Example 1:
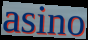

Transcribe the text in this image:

asino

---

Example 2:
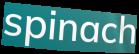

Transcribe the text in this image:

spinach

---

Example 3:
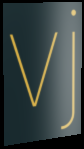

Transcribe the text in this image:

vj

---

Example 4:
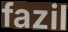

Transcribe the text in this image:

fazil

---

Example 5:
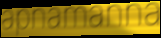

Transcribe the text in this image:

apnamanna